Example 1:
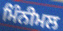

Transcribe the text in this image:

ਮਿੰਨੀਮਲ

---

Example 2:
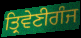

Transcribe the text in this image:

ਤ੍ਰਿਵੇਣੀਗੰਜ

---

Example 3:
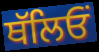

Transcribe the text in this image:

ਥੱਲਿਓਂ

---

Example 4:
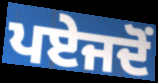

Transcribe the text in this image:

ਪਏਜਦੋਂ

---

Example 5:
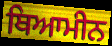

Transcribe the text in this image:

ਥਿਆਮੀਨ